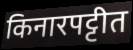
किनारपट्टीत